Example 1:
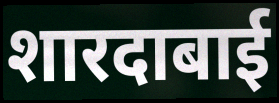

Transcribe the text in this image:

शारदाबाई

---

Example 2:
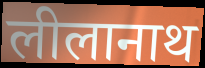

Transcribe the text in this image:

लीलानाथ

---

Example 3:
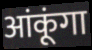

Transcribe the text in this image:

आंकूंगा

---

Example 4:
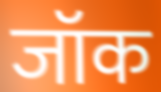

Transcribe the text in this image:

जॉक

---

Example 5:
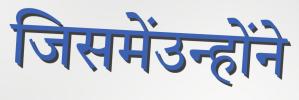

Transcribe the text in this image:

जिसमेंउन्होंने